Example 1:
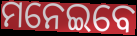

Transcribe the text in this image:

ମନେଇବେ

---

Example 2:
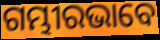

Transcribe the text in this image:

ଗମ୍ଭୀରଭାବେ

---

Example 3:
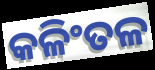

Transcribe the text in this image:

କଳିଂତଳ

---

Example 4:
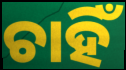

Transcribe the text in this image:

ଚାହିଁ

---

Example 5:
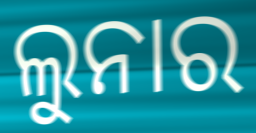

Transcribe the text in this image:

ଲୁନାର